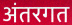
अंतरगत